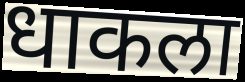
धाकला